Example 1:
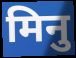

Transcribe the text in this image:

मिनु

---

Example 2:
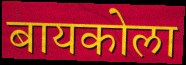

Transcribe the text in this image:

बायकोला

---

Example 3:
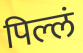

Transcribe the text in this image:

पिल्लं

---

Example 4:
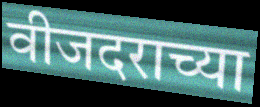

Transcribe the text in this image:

वीजदराच्या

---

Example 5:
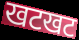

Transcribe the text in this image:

खटखट